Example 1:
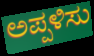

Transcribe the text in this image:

ಅಪ್ಪಳಿಸು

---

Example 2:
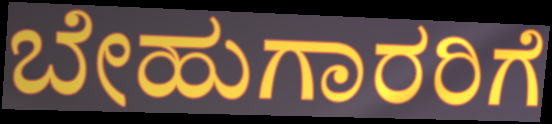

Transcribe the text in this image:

ಬೇಹುಗಾರರಿಗೆ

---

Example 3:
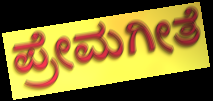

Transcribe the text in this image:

ಪ್ರೇಮಗೀತೆ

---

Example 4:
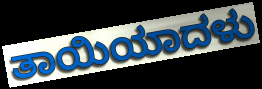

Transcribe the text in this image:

ತಾಯಿಯಾದಳು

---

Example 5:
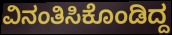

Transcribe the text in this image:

ವಿನಂತಿಸಿಕೊಂಡಿದ್ದ